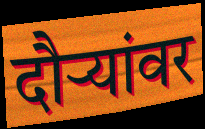
दौर्‍यांवर